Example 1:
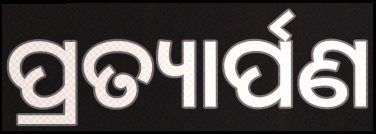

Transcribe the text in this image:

ପ୍ରତ୍ୟାର୍ପଣ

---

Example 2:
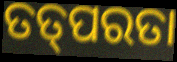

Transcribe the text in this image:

ତତ୍‌ପରତା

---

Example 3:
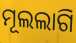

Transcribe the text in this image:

ମୂଲଲାଗି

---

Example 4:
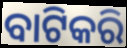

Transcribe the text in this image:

ବାଟିକରି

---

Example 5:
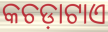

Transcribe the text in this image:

କଚଡ଼ାଟାଏ